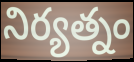
నిర్యత్నం